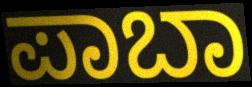
ಪಾಬಾ